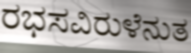
ರಭಸವಿರುಳೆನುತ